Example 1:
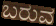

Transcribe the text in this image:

ಬರುವ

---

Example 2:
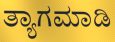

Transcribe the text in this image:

ತ್ಯಾಗಮಾಡಿ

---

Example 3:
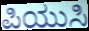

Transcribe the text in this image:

ಪಿಯುಸಿ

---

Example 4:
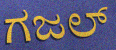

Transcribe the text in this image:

ಗಜಲ್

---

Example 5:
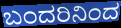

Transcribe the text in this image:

ಬಂದರಿನಿಂದ